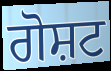
ਗੋਸ਼ਟ